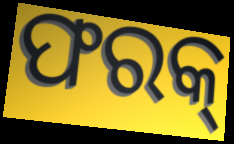
ଫରକ୍